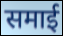
समाई